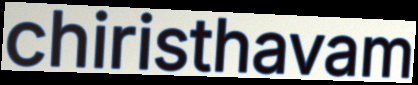
chiristhavam